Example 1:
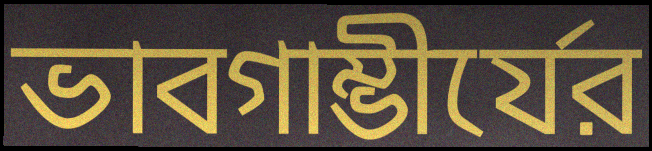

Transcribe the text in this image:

ভাবগাম্ভীর্যের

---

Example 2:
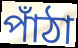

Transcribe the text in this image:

পাঁঠা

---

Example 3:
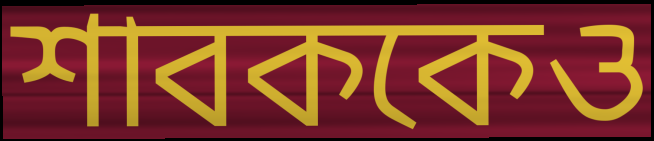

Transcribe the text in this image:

শাবককেও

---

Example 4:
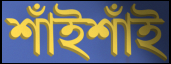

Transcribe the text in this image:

শাঁইশাঁই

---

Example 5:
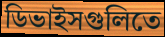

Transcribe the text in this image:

ডিভাইসগুলিতে